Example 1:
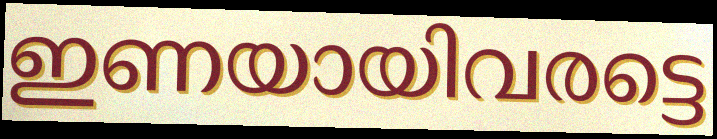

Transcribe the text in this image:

ഇണയായിവരട്ടെ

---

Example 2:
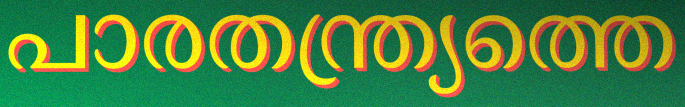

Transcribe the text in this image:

പാരതന്ത്ര്യത്തെ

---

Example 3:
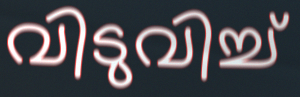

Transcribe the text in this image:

വിടുവിച്ച്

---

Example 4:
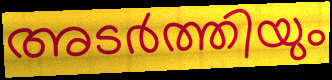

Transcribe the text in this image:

അടർത്തിയും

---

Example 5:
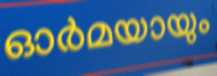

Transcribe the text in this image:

ഓർമയായും